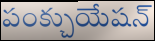
పంక్చుయేషన్